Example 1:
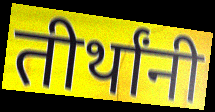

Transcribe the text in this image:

तीर्थांनी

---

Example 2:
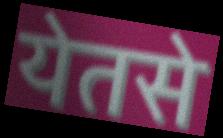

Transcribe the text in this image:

येतसे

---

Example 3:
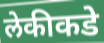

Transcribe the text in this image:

लेकीकडे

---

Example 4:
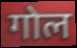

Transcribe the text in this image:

गोल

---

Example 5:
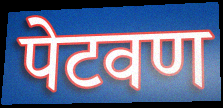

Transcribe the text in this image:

पेटवण